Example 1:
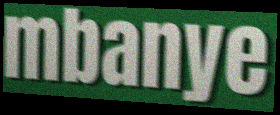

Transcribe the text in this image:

mbanye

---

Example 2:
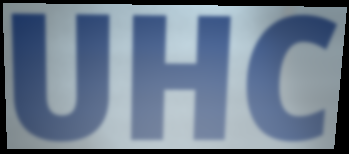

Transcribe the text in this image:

UHC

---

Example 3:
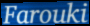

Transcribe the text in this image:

Farouki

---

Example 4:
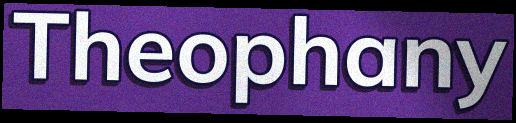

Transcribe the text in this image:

Theophany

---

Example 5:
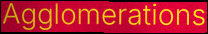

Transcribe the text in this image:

Agglomerations